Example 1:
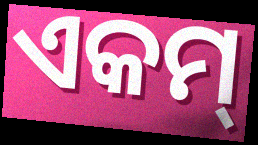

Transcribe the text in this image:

ଏକମ୍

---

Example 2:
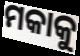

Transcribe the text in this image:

ମକାକୁ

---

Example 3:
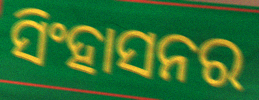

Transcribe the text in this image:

ସିଂହାସନର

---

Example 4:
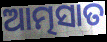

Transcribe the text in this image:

ଆତ୍ମସାତ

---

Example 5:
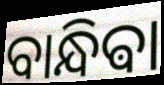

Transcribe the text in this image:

ବାନ୍ଧିଵା